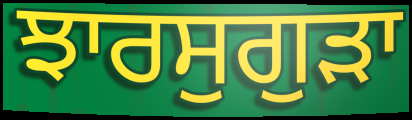
ਝਾਰਸੁਗੁੜਾ